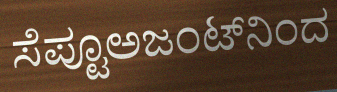
ಸೆಪ್ಟೂಅಜಂಟ್‌ನಿಂದ